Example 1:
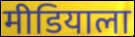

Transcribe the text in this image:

मीडियाला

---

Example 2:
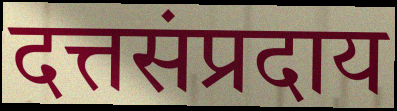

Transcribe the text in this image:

दत्तसंप्रदाय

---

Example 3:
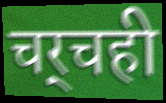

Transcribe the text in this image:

चर्चही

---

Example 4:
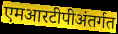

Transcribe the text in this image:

एमआरटीपीअंतर्गत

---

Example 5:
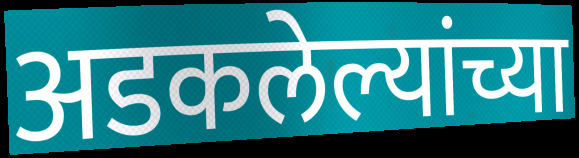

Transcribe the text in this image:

अडकलेल्यांच्या